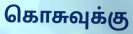
கொசுவுக்கு